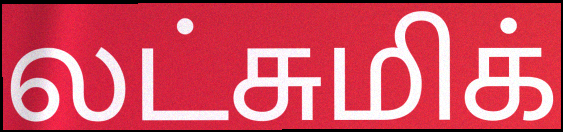
லட்சுமிக்